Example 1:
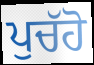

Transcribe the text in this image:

ਪੁਚੱਹੋ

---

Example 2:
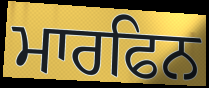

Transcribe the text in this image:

ਮਾਰਫਿਨ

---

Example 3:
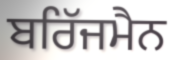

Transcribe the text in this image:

ਬਰਿੱਜਮੈਨ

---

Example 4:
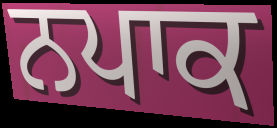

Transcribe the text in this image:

ਨਪਾਕ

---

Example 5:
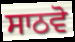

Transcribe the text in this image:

ਸਾਠਵੋ